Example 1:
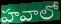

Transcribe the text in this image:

హవాలో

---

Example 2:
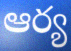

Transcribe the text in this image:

ఆర్య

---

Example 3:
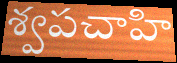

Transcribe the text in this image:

శ్వపచాహి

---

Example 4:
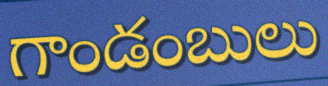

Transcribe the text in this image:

గాండంబులు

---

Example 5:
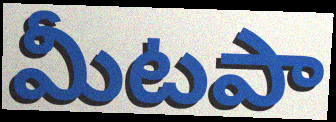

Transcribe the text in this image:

మీటపా